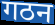
गठन